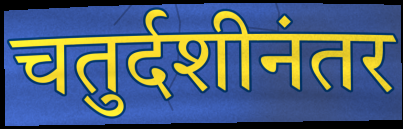
चतुर्दशीनंतर